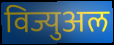
विज्युअल